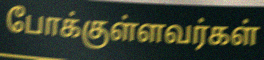
போக்குள்ளவர்கள்